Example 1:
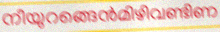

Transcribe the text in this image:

നീയുറങ്ങെൻമിഴിവണ്ടിണ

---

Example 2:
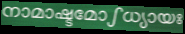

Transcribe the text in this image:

നാമാഷ്ടമോഽധ്യായഃ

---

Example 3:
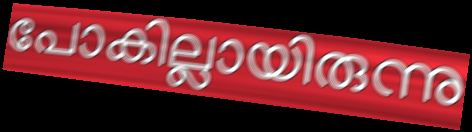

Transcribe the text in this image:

പോകില്ലായിരുന്നു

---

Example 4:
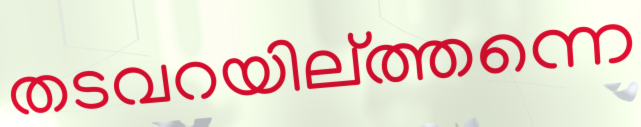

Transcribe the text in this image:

തടവറയില്ത്തന്നെ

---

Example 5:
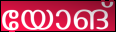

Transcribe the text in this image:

യോങ്